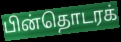
பின்தொடரக்